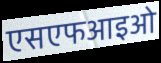
एसएफआइओ